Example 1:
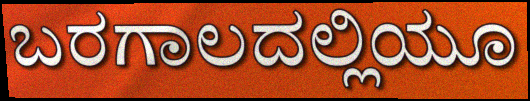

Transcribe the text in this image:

ಬರಗಾಲದಲ್ಲಿಯೂ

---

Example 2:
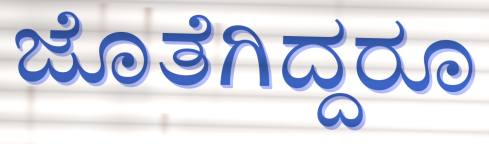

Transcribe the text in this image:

ಜೊತೆಗಿದ್ದರೂ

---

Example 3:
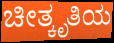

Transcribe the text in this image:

ಚೀತ್ಕೃತಿಯ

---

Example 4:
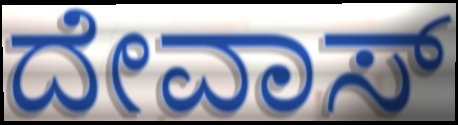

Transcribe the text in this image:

ದೇವಾಸ್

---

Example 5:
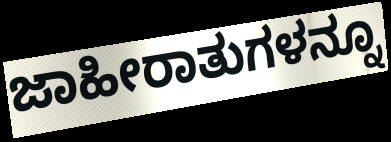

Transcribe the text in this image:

ಜಾಹೀರಾತುಗಳನ್ನೂ